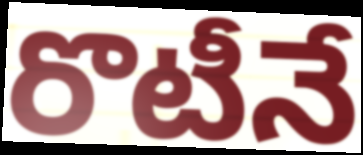
రొటీనే